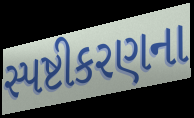
સ્પષ્ટીકરણના